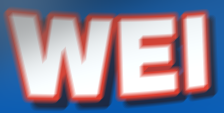
WEI